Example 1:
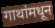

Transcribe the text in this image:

गाथांमधून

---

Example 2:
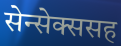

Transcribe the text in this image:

सेन्सेक्ससह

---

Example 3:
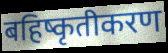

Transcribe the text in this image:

बहिष्कृतीकरण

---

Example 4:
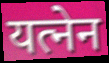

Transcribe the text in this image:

यत्‍नेन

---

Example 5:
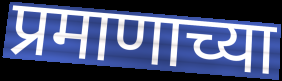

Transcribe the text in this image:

प्रमाणाच्या